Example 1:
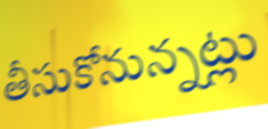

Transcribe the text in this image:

తీసుకోనున్నట్లు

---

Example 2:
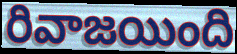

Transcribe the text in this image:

రివాజయింది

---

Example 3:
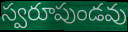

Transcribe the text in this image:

స్వరూపుండవు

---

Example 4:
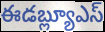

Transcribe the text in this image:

ఈడబ్ల్యూఎస్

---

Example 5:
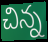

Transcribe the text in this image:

చిన్న